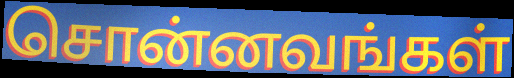
சொன்னவங்கள்